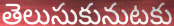
తెలుసుకునుటకు